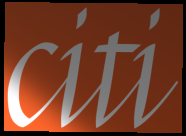
citi